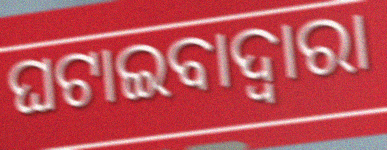
ଘଟାଇବାଦ୍ୱାରା